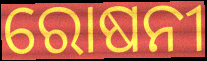
ରୋଷନୀ